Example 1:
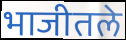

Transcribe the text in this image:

भाजीतले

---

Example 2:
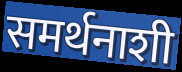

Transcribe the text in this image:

समर्थनाशी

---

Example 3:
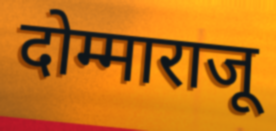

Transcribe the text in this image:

दोम्माराजू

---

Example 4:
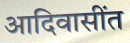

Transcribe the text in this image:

आदिवासींत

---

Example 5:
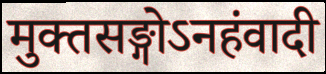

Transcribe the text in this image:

मुक्तसङ्गोऽनहंवादी